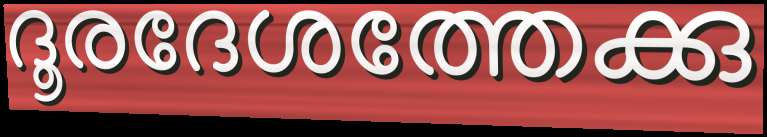
ദൂരദേശത്തേക്കു